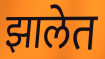
झालेत